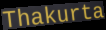
Thakurta